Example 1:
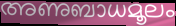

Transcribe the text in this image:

അണുബാധമൂലം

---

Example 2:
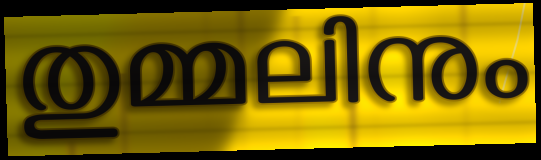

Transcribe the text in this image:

തുമ്മലിനും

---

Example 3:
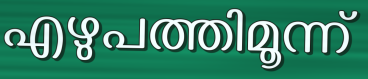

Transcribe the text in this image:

എഴുപത്തിമൂന്ന്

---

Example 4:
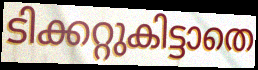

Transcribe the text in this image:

ടിക്കറ്റുകിട്ടാതെ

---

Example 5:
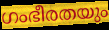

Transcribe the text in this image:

ഗംഭീരതയും